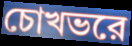
চোখভরে